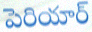
పెరియార్